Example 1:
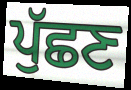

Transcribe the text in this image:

ਪੁੱਛਣ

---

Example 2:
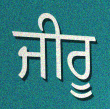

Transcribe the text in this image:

ਜੀਰੂ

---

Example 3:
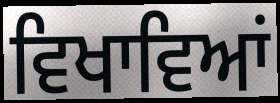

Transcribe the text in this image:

ਵਿਖਾਵਿਆਂ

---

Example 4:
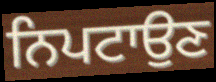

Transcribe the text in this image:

ਨਿਪਟਾਉਣ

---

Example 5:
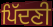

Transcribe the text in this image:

ਪਿੱਦਣੀ